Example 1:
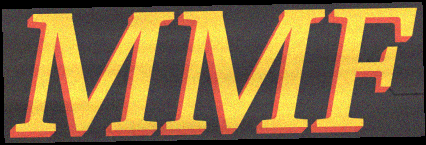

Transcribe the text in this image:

MMF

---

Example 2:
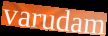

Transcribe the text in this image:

varudam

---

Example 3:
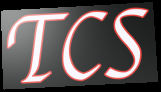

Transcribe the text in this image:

TCS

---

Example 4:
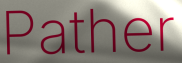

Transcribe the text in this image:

Pather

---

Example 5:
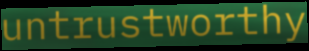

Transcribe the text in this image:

untrustworthy